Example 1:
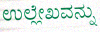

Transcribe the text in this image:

ಉಲ್ಲೇಖವನ್ನು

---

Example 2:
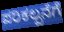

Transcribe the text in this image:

ಪರಿಕಲ್ಪನೆಗೆ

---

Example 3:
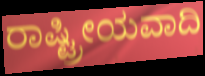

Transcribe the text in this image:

ರಾಷ್ಟ್ರೀಯವಾದಿ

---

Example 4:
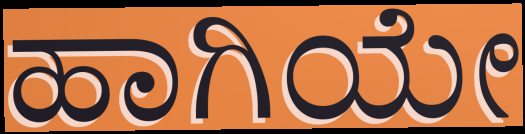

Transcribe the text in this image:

ಹಾಗಿಯೇ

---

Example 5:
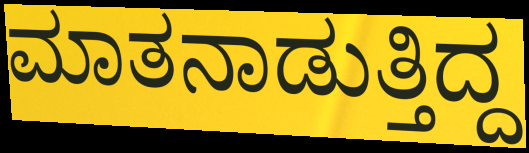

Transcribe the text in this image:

ಮಾತನಾಡುತ್ತಿದ್ದ